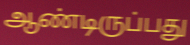
ஆண்டிருப்பது